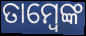
ତାମ୍ବେଙ୍କ